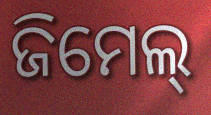
ଜିମେଲ୍